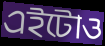
এইটোও